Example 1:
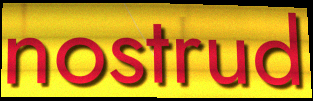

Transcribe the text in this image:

nostrud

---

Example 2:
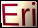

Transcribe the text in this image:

Eri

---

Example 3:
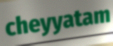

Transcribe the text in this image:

cheyyatam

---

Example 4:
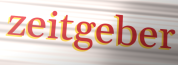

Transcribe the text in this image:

zeitgeber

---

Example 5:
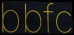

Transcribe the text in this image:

bbfc